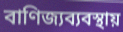
বাণিজ্যব্যবস্থায়